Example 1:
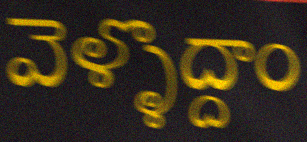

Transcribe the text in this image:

వెళ్ళొద్దాం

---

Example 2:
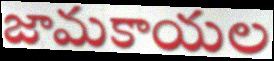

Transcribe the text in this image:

జామకాయల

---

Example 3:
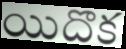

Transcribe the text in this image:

యిదొక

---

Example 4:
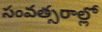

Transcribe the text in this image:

సంవత్సరాల్లో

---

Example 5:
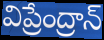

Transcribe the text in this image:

విప్రేంద్రాన్